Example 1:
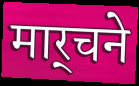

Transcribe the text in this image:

मार्चने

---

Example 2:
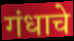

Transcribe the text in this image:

गंधाचे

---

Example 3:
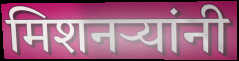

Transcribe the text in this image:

मिशनर्‍यांनी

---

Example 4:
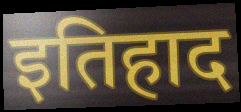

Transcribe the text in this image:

इतिहाद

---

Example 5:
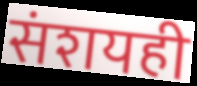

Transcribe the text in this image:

संशयही